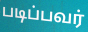
படிப்பவர்